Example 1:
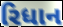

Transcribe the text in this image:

રિધાન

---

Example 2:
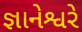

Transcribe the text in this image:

જ્ઞાનેશ્વરે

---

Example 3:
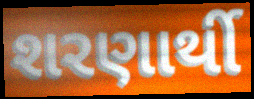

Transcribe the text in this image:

શરણાર્થી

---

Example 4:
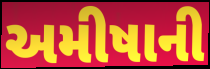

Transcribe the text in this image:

અમીષાની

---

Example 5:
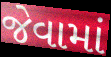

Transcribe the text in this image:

જેવામાં